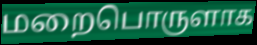
மறைபொருளாக